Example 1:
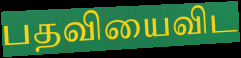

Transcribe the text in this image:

பதவியைவிட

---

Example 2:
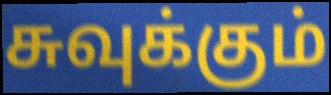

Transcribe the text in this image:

சுவுக்கும்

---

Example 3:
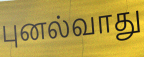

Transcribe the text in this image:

புனல்வாது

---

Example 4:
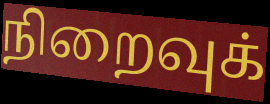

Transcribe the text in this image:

நிறைவுக்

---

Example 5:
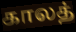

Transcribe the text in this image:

காலத்